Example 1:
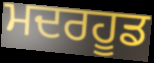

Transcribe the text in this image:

ਮਦਰਹੂਡ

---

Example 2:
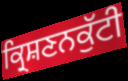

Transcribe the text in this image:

ਕ੍ਰਿਸ਼ਣਨਕੁੱਟੀ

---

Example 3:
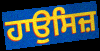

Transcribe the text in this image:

ਹਾਉਸਿਜ਼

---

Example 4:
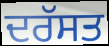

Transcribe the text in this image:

ਦਰੱਸਤ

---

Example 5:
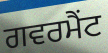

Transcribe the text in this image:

ਗਵਰਮੈਂਟ